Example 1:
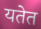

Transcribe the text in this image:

यतेत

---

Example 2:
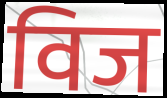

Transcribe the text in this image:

विज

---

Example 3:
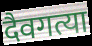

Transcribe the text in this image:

दैवगत्या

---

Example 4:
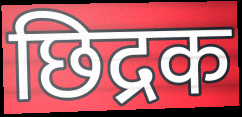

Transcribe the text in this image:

छिद्रक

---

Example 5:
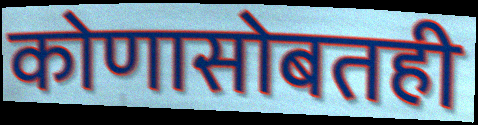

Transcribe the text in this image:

कोणासोबतही